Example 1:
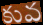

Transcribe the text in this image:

కువ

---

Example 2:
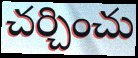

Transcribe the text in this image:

చర్చించు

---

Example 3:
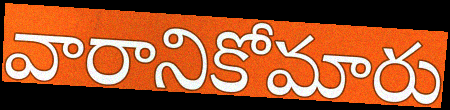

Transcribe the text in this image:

వారానికోమారు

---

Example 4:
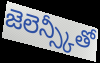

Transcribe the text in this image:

జెలెన్స్కీతో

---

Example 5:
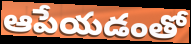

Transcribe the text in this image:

ఆపేయడంతో